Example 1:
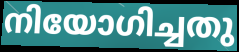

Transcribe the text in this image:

നിയോഗിച്ചതു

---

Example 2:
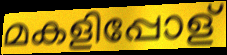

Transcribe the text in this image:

മകളിപ്പോള്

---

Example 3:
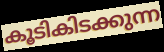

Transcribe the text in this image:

കൂടികിടക്കുന്ന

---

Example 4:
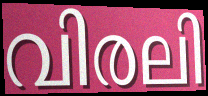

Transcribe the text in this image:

വിരലി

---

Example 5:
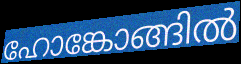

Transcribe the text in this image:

ഹോങ്കോങ്ങിൽ